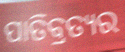
ପାତିବ୍ରତ୍ୟର